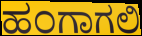
ಹಂಗಾಗಲಿ